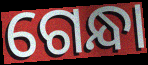
ଗେନ୍ଧା